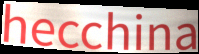
hecchina